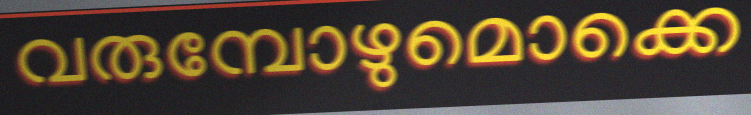
വരുമ്പോഴുമൊക്കെ